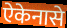
ऐकेनासे